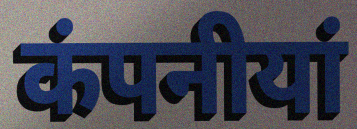
कंपनीयां